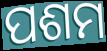
ପଶମ